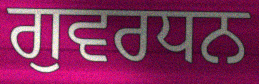
ਗੁਵਰਧਨ